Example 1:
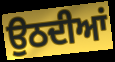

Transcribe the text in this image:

ਉਠਦੀਆਂ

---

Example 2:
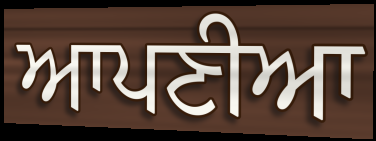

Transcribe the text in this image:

ਆਪਣੀਆ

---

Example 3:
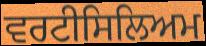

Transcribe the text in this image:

ਵਰਟੀਸਿਲਿਅਮ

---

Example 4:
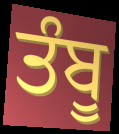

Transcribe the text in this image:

ਤੰਬੂ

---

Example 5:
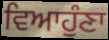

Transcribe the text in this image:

ਵਿਆਹੁੰਣਾ